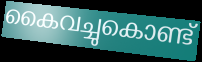
കൈവച്ചുകൊണ്ട്